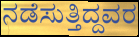
ನಡೆಸುತ್ತಿದ್ದವರ